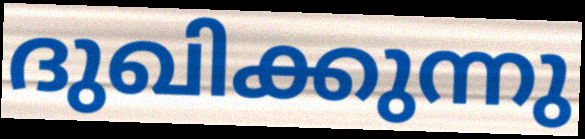
ദുഖിക്കുന്നു